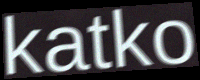
katko